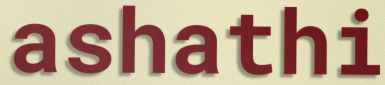
ashathi